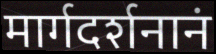
मार्गदर्शनानं